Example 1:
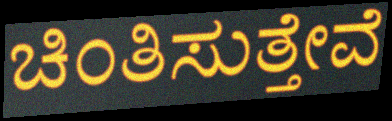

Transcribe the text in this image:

ಚಿಂತಿಸುತ್ತೇವೆ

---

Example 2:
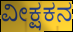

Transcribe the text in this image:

ವೀಕ್ಷಕನ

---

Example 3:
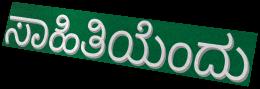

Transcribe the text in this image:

ಸಾಹಿತಿಯೆಂದು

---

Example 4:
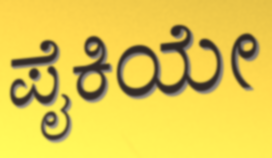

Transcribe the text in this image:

ಪೈಕಿಯೇ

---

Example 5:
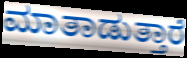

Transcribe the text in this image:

ಮಾತಾಡುತ್ತಾರೆ